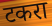
टकरा